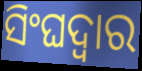
ସିଂଘଦ୍ୱାର